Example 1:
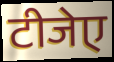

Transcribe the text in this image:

टीजेए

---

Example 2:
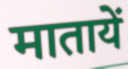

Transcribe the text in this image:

मातायें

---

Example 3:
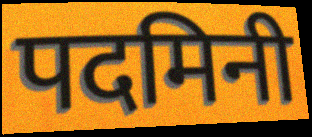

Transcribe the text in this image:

पदमिनी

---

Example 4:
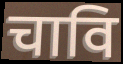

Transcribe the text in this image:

चावि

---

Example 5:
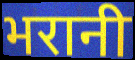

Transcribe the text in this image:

भरानी